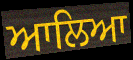
ਆਲਿਆ